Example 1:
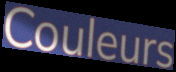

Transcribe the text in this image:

Couleurs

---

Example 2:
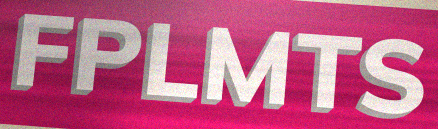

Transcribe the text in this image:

FPLMTS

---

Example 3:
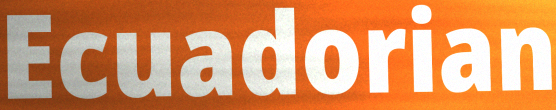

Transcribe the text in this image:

Ecuadorian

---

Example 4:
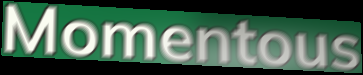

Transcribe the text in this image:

Momentous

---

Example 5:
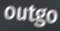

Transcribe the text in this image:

outgo